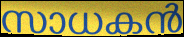
സാധകൻ